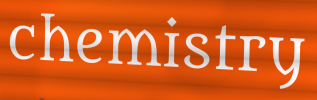
chemistry